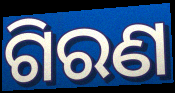
ଗିରଣ